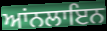
ਆਂਨਲਾਇਨ